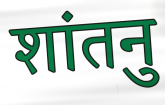
शांतनु